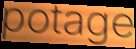
potage